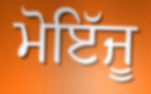
ਮੋਇੱਜੂ